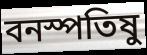
বনস্পতিষু